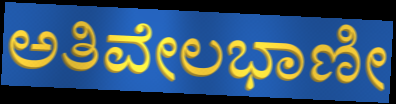
ಅತಿವೇಲಭಾಣೀ